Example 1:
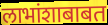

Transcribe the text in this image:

लाभांशाबाबत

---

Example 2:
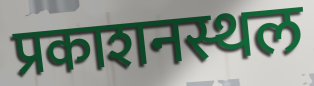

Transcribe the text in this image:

प्रकाशनस्थल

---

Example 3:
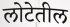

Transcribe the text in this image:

लोटेतील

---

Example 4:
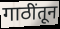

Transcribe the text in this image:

गाठींतून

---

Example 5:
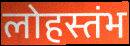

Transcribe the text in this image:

लोहस्तंभ